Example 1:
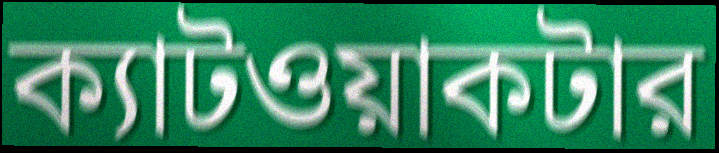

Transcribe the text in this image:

ক্যাটওয়াকটার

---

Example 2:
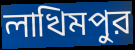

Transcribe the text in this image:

লাখিমপুর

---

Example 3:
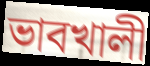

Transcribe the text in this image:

ভাবখালী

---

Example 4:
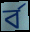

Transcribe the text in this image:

র্ব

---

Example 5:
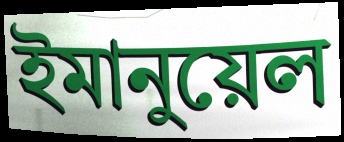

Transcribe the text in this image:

ইমানুয়েল